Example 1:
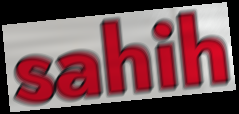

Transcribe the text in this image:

sahih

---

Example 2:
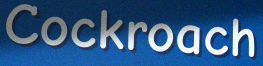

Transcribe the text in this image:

Cockroach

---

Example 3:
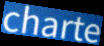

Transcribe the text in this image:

charte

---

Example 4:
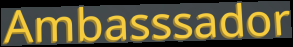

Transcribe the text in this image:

Ambasssador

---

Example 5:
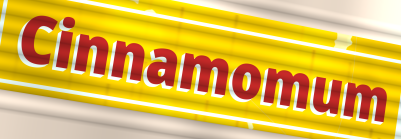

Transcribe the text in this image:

Cinnamomum